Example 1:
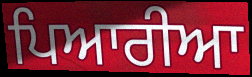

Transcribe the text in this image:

ਪਿਆਰੀਆ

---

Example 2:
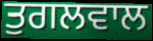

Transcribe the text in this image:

ਤੁਗਲਵਾਲ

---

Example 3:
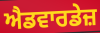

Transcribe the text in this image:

ਐਡਵਾਰਡੇਜ਼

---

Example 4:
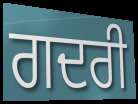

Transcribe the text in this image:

ਗਦਰੀ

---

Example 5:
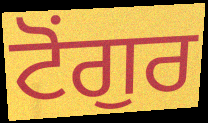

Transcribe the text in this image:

ਟੋਂਗੁਰ